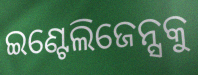
ଇଣ୍ଟେଲିଜେନ୍ସକୁ